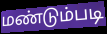
மண்டும்படி